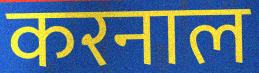
करनाल